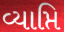
વ્યાપ્તિ